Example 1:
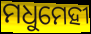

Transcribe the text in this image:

ମଧୁମେହୀ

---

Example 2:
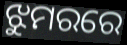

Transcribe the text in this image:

ଝୁମରରେ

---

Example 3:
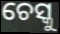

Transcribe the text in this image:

ଚେସ୍କୁ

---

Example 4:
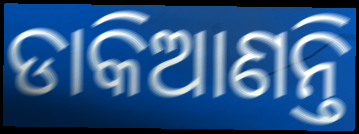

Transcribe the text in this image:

ଡାକିଆଣନ୍ତି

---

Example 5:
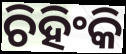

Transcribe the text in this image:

ଚିହିଂକି